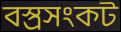
বস্ত্রসংকট